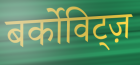
बर्कोविट्ज़